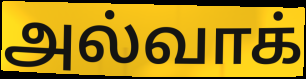
அல்வாக்